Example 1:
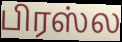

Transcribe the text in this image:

பிரஸ்ல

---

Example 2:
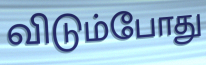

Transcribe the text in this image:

விடும்போது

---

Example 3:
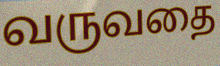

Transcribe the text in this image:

வருவதை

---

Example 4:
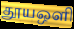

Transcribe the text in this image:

தூயஒளி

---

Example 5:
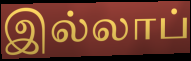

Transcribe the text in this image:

இல்லாப்